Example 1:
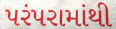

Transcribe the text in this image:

પરંપરામાંથી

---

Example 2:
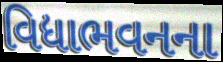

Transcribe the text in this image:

વિદ્યાભવનના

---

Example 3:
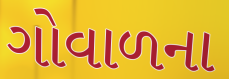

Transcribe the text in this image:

ગોવાળના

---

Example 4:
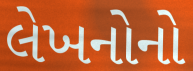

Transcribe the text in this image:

લેખનોનો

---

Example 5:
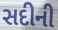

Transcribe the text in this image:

સદીની